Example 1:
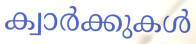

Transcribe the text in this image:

ക്വാർക്കുകൾ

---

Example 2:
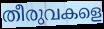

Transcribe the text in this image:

തീരുവകളെ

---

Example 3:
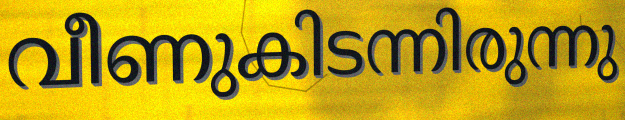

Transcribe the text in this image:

വീണുകിടന്നിരുന്നു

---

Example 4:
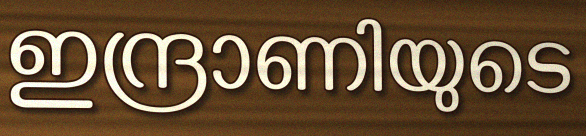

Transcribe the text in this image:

ഇന്ദ്രാണിയുടെ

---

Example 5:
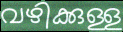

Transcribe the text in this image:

വഴിക്കുള്ള